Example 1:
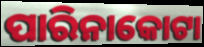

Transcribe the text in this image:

ପାରିନାକୋଟା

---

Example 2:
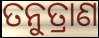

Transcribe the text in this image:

ତନୁତ୍ରାଣ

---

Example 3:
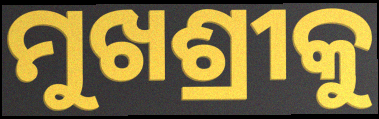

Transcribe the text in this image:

ମୁଖଶ୍ରୀକୁ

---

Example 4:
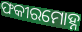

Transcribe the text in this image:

ଫକୀରମୋହ୍ନ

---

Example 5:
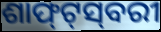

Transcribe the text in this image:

ଶାଫ୍‍ଟ୍‍ସ୍‍ବରୀ